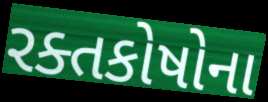
રક્તકોષોના